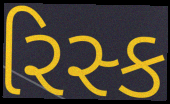
રિસ્ક